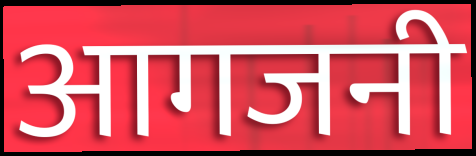
आगजनी